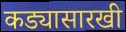
कड्यासारखी